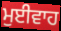
ਮੁਈਵਾਹ